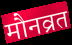
मौनव्रत